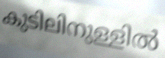
കുടിലിനുള്ളിൽ